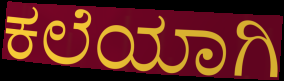
ಕಲೆಯಾಗಿ